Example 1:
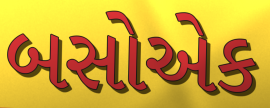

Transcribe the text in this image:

બસોએક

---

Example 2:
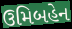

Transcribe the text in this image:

ઉમિબહેન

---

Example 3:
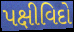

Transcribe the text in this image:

પક્ષીવિદો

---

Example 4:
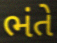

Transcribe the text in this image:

ભંતે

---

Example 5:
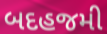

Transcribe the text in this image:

બદહજમી